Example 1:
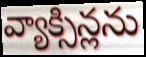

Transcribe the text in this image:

వ్యాక్సిన్లను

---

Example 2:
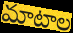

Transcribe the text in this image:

మాటాల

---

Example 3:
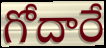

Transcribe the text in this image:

గోదారే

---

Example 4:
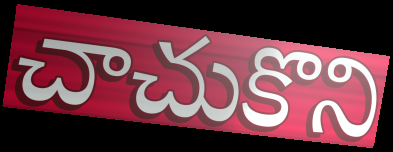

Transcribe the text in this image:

చాచుకొని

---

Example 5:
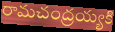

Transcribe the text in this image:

రామచంద్రయ్యకి